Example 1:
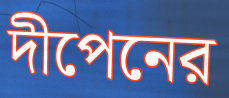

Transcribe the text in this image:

দীপেনের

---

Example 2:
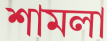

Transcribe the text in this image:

শামলা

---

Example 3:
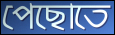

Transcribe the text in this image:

পেছোতে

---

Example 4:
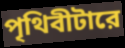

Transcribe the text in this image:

পৃথিবীটারে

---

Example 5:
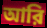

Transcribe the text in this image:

আরি